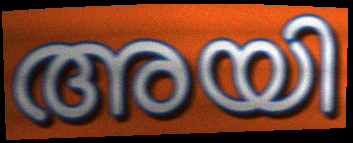
അയി